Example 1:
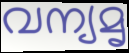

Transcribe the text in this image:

വന്യമൃ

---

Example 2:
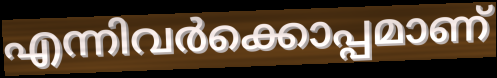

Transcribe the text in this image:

എന്നിവർക്കൊപ്പമാണ്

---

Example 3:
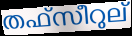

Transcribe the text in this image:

തഫ്സീറുല്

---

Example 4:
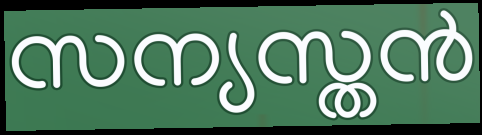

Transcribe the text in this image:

സന്യസ്തൻ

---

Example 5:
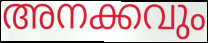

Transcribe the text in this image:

അനക്കവും